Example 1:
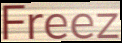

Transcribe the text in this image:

Freez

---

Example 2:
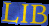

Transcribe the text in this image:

LIB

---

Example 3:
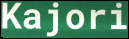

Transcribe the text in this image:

Kajori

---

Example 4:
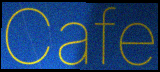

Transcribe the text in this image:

Cafe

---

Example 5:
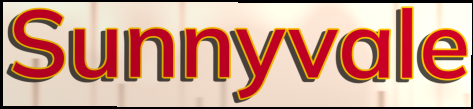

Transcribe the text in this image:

Sunnyvale